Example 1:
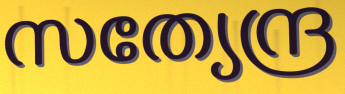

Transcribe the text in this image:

സത്യേന്ദ്ര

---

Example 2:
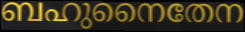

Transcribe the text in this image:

ബഹുനൈതേന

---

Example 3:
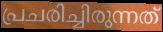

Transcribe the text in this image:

പ്രചരിച്ചിരുന്നത്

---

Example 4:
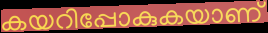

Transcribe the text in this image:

കയറിപ്പോകുകയാണ്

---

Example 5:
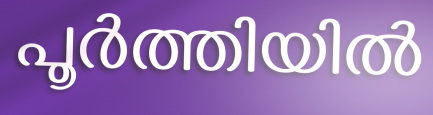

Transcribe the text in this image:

പൂർത്തിയിൽ